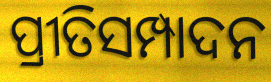
ପ୍ରୀତିସମ୍ପାଦନ